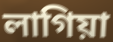
লাগিয়া